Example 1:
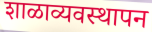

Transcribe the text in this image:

शाळाव्यवस्थापन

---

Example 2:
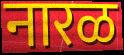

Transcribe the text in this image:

नारळ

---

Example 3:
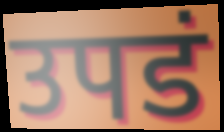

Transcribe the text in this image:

उपडं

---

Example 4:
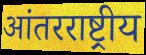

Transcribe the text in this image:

आंतरराष्ट्रीय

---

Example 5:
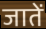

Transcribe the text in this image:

जातें